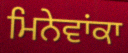
ਮਿਨੇਵਾਂਕਾ